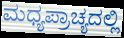
ಮಧ್ಯಪ್ರಾಚ್ಯದಲ್ಲಿ